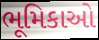
ભૂમિકાઓ